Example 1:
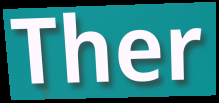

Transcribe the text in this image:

Ther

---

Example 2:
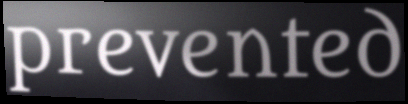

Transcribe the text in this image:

prevented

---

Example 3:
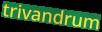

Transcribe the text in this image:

trivandrum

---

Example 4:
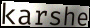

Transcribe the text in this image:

karshe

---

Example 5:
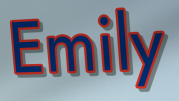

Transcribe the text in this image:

Emily